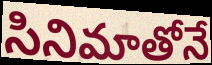
సినిమాతోనే